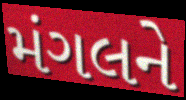
મંગલને